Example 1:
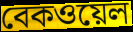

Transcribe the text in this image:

বেকওয়েল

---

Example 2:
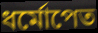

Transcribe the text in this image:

ধর্মোপেত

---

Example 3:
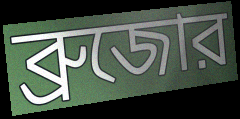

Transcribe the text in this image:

ব্রুজোর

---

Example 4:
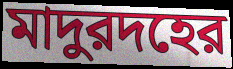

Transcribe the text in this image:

মাদুরদহের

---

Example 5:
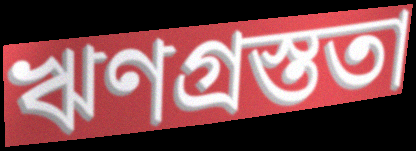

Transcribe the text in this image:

ঋণগ্রস্ততা